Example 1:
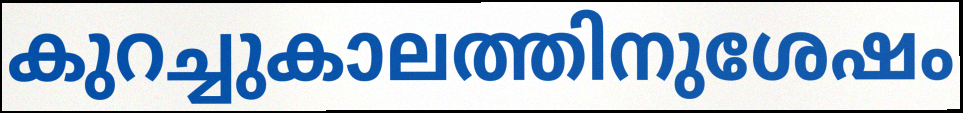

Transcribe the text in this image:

കുറച്ചുകാലത്തിനുശേഷം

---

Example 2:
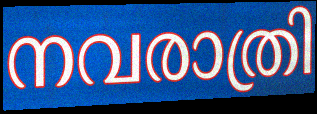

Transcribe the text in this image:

നവരാത്രി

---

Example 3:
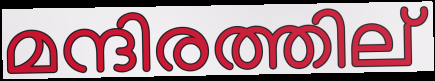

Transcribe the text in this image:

മന്ദിരത്തില്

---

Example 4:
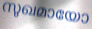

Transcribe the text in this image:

സുഖമായോ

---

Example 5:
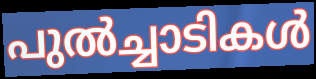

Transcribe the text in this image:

പുൽച്ചാടികൾ